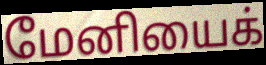
மேனியைக்